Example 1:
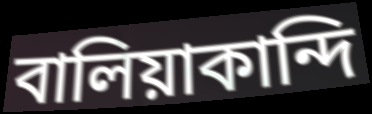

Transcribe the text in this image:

বালিয়াকান্দি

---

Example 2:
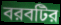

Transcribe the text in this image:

বরবটির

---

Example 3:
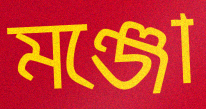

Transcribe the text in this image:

মঞ্জো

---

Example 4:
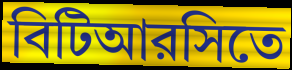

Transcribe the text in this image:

বিটিআরসিতে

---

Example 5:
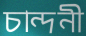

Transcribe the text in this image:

চান্দনী